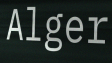
Alger